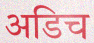
अडिच